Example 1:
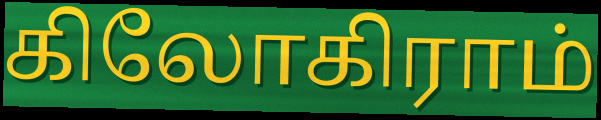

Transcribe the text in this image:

கிலோகிராம்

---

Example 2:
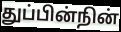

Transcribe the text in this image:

துப்பின்நின்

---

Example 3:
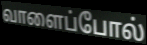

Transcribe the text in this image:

வாளைப்போல்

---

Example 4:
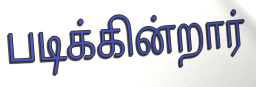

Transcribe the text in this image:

படிக்கின்றார்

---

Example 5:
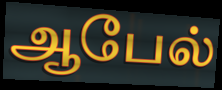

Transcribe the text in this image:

ஆபேல்